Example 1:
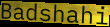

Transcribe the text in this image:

Badshahi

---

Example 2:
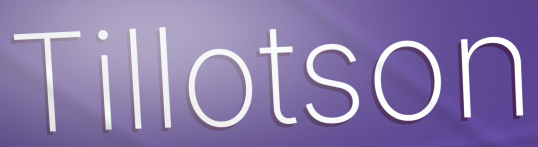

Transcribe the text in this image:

Tillotson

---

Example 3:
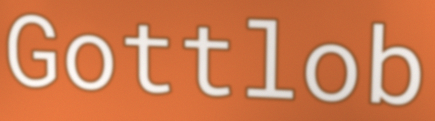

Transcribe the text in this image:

Gottlob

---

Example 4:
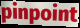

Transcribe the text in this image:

pinpoint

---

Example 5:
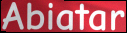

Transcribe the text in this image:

Abiatar